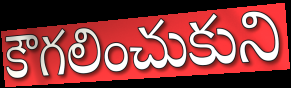
కౌగలించుకుని